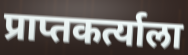
प्राप्तकर्त्याला